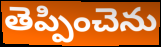
తెప్పించెను